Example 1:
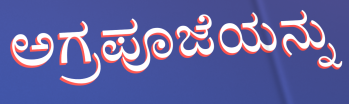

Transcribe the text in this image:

ಅಗ್ರಪೂಜೆಯನ್ನು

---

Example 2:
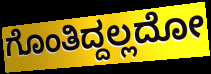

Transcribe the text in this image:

ಗೊಂತಿದ್ದಲ್ಲದೋ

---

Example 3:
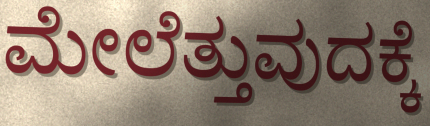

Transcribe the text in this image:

ಮೇಲೆತ್ತುವುದಕ್ಕೆ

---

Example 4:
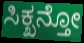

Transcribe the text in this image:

ಸಿಕ್ಖನ್ತೋ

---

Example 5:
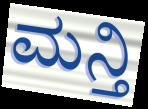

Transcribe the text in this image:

ಮನ್ತಿ